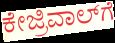
ಕೇಜ್ರಿವಾಲ್‍ಗೆ